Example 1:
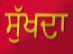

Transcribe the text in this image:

ਸੁੱਖਦਾ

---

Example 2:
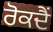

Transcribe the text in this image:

ਰੋਕਦੈਂ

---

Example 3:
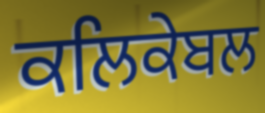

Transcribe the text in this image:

ਕਲਿਕੇਬਲ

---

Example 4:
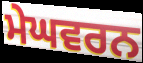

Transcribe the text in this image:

ਮੇਘਵਰਨ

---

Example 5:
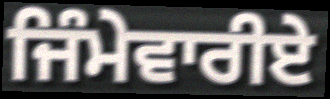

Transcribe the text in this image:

ਜਿੰਮੇਵਾਰੀਏ